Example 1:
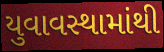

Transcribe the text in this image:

યુવાવસ્થામાંથી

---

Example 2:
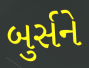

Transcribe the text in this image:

બુર્સને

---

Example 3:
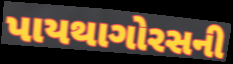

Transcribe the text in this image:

પાયથાગોરસની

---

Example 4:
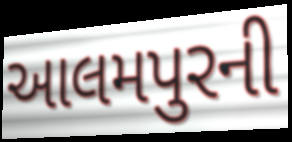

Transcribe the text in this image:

આલમપુરની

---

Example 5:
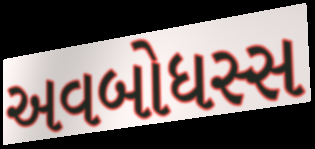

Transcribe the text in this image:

અવબોધસ્સ